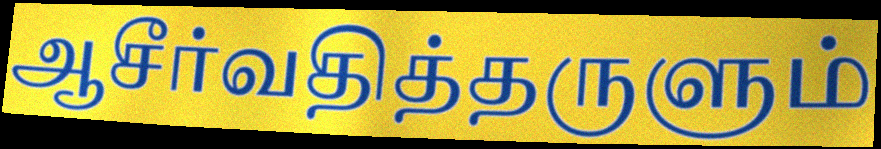
ஆசீர்வதித்தருளும்